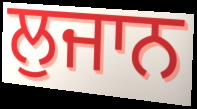
ਲੁਜਾਨ